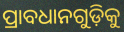
ପ୍ରାବଧାନଗୁଡ଼ିକୁ